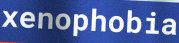
xenophobia